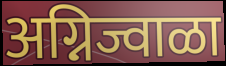
अग्निज्वाळा